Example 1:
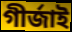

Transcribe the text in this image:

গীৰ্জাই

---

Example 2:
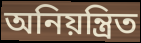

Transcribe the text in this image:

অনিয়ন্ত্ৰিত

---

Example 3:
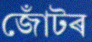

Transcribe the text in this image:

জোঁটৰ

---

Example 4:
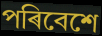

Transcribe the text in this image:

পৰিবেশে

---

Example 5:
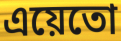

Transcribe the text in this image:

এয়েতো